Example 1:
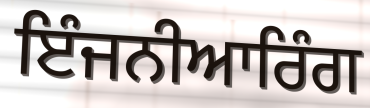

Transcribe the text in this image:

ਇੰਜਨੀਆਰਿੰਗ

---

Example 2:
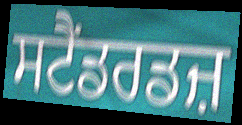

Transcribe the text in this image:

ਸਟੈਂਡਰਡਜ਼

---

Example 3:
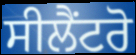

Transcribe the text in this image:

ਸੀਲੈਂਟਰੋ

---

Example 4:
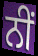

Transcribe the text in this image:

ਨੀਂ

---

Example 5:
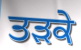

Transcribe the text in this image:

ਤੜਕੇ